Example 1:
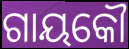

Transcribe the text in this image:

ଗାୟକୌ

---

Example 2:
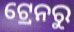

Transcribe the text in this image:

ଟ୍ରେନରୁ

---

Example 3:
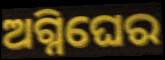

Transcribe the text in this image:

ଅଗ୍ନିଘେର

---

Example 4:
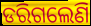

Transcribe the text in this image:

ଡରିଗଲେଣି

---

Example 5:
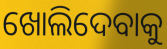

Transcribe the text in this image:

ଖୋଲିଦେବାକୁ